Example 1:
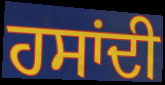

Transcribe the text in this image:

ਹਸਾਂਦੀ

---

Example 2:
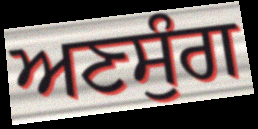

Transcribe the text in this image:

ਅਣਸੁੰਗ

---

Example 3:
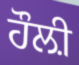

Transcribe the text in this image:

ਹੌਲ਼ੀ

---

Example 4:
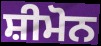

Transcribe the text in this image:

ਸ਼ੀਮੋਨ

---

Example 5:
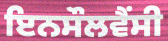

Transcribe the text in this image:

ਇਨਸੌਲਵੈਂਸੀ